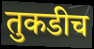
तुकडीच